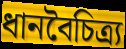
ধানবৈচিত্র্য